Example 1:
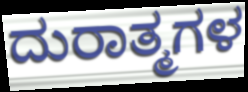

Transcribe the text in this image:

ದುರಾತ್ಮಗಳ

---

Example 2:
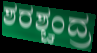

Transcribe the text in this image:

ಶರಶ್ಚಂದ್ರ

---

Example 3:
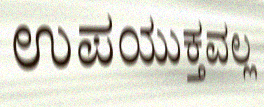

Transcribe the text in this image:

ಉಪಯುಕ್ತವಲ್ಲ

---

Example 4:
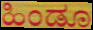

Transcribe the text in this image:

ಹಿಂಡೂ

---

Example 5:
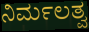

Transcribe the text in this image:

ನಿರ್ಮಲತ್ವ